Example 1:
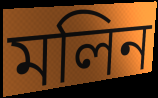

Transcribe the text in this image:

মলিন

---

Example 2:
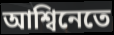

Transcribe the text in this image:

আশ্বিনেতে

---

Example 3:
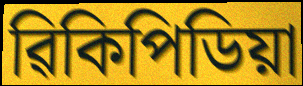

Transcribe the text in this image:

ৱিকিপিডিয়া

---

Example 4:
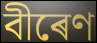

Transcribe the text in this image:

বীৰেণ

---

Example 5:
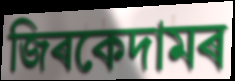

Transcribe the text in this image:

জিৰকেদামৰ